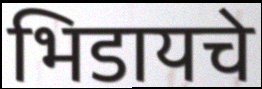
भिडायचे